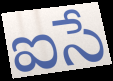
ఐసే